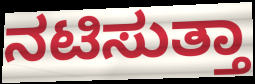
ನಟಿಸುತ್ತಾ